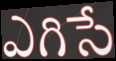
ఎగిసే